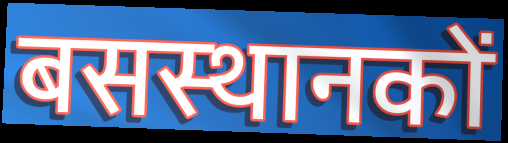
बसस्थानकों